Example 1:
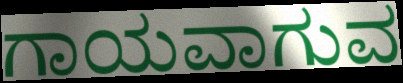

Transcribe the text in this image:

ಗಾಯವಾಗುವ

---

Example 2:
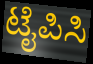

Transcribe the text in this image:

ಟೈಪಿಸಿ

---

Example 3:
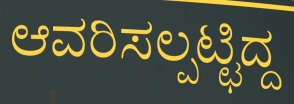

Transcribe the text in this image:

ಆವರಿಸಲ್ಪಟ್ಟಿದ್ದ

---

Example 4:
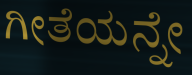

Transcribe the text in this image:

ಗೀತೆಯನ್ನೇ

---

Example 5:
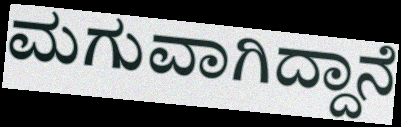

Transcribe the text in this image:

ಮಗುವಾಗಿದ್ದಾನೆ